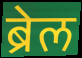
ब्रेल